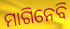
ମାଗିନେବି